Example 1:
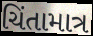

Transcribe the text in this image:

ચિંતામાત્ર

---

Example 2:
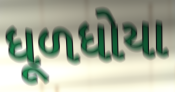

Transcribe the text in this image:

ધૂળધોયા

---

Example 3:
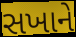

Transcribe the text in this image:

સખાને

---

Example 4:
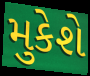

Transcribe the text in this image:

મુકેશે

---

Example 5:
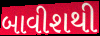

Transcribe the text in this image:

બાવીશથી